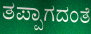
ತಪ್ಪಾಗದಂತೆ